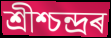
শ্ৰীশ্চন্দ্ৰৰ